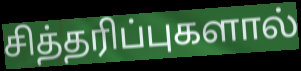
சித்தரிப்புகளால்